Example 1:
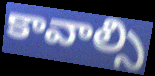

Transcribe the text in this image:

కావాల్సి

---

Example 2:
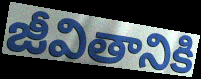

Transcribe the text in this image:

జీవితానికి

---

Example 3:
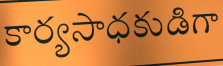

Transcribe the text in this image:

కార్యసాధకుడిగా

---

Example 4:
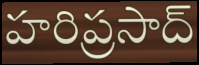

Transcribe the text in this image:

హరిప్రసాద్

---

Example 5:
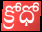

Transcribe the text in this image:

క్రోధో